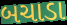
બચાડા